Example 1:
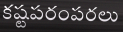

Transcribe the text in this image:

కష్టపరంపరలు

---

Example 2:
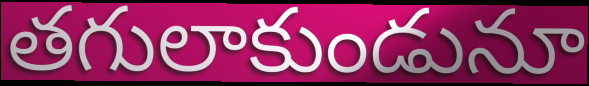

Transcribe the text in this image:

తగులాకుండునూ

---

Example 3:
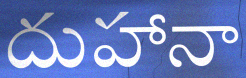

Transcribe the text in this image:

దుహానా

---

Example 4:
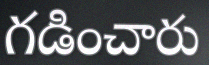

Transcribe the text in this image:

గడించారు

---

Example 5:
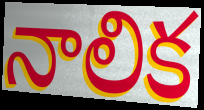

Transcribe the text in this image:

నాలిక